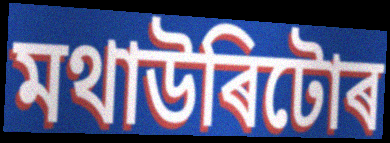
মথাউৰিটোৰ